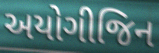
અયોગીજિન